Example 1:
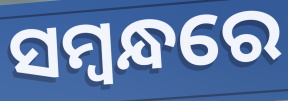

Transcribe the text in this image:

ସମ୍ବନ୍ଧରେ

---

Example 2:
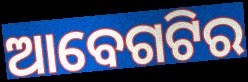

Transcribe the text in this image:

ଆବେଗଟିର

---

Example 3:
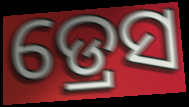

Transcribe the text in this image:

ଡ୍ରେସ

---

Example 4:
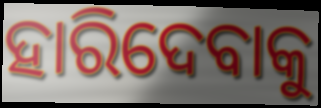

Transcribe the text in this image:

ହାରିଦେବାକୁ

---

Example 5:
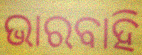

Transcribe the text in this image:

ଭାରବାହି